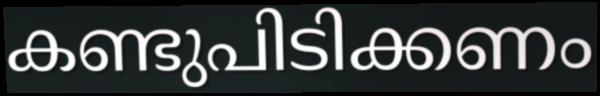
കണ്ടുപിടിക്കണം